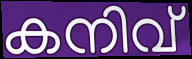
കനിവ്